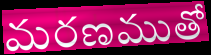
మరణముతో